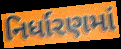
નિર્ધારણમાં